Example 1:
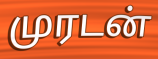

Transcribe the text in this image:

முரடன்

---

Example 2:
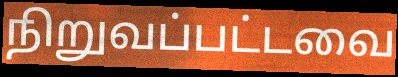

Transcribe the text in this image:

நிறுவப்பட்டவை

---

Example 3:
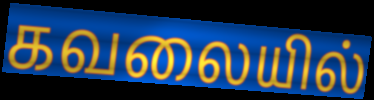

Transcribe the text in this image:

கவலையில்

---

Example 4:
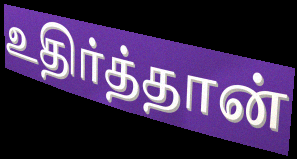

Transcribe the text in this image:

உதிர்த்தான்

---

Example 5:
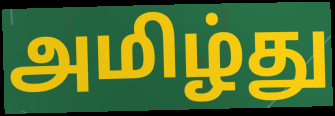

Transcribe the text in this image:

அமிழ்து